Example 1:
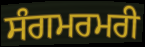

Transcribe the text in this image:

ਸੰਗਮਰਮਰੀ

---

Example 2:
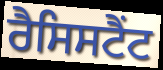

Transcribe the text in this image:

ਰੈਸਿਸਟੈਂਟ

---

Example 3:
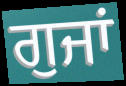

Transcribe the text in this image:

ਗੁਜਾਂ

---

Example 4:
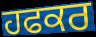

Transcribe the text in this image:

ਹਫਕਰ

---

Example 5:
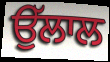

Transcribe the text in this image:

ਉੱਲਾਲ